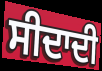
ਸੀਦਾਦੀ